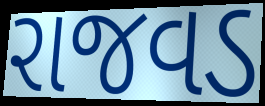
રાજવડ